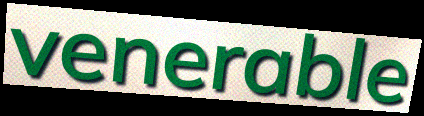
venerable